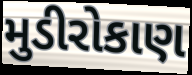
મુડીરોકાણ